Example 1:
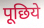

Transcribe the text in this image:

पूछिये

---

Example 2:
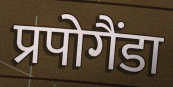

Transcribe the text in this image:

प्रपोगैंडा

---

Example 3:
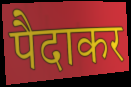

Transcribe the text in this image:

पैदाकर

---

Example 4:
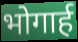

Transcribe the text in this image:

भोगार्ह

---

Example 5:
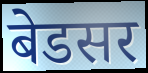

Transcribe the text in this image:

बेडसर